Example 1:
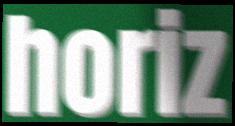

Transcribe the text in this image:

horiz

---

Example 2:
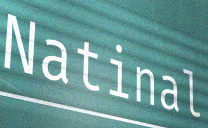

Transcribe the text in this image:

Natinal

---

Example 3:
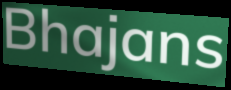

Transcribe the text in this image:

Bhajans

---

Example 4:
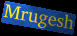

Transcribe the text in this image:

Mrugesh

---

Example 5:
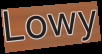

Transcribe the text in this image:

Lowy